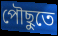
পৌছুতে